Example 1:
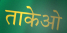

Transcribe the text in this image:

ताकेओ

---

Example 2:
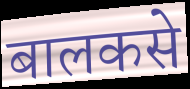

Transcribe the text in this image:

बालकसे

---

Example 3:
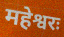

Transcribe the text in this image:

महेश्वरः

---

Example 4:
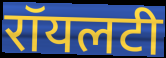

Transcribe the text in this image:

रॉयलटी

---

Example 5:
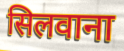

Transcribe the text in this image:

सिलवाना